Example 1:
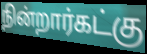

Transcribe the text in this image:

நின்றார்கட்கு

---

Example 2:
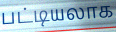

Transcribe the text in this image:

பட்டியலாக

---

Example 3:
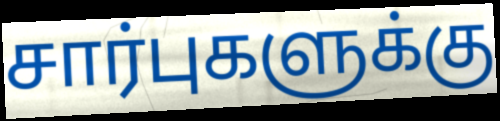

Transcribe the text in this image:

சார்புகளுக்கு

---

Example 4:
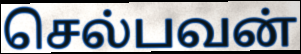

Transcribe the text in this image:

செல்பவன்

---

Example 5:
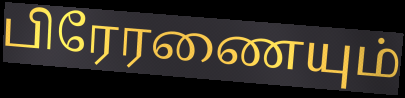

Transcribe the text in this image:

பிரேரணையும்